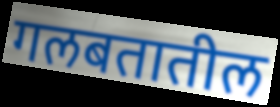
गलबतातील